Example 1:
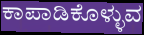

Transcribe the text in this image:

ಕಾಪಾಡಿಕೊಳ್ಳುವ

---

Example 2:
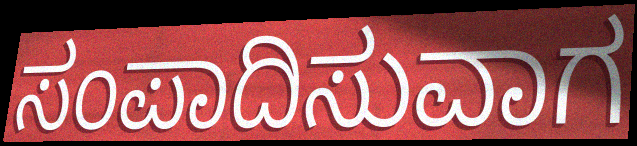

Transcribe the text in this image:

ಸಂಪಾದಿಸುವಾಗ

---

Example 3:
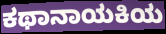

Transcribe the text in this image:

ಕಥಾನಾಯಕಿಯ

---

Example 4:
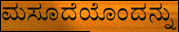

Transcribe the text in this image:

ಮಸೂದೆಯೊಂದನ್ನು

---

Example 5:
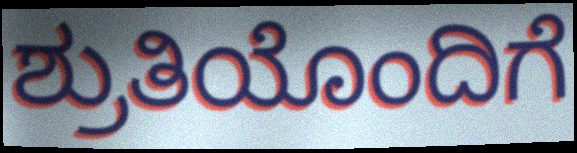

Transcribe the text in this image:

ಶ್ರುತಿಯೊಂದಿಗೆ